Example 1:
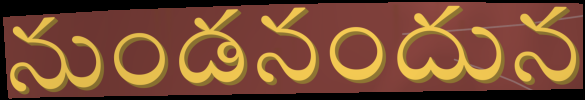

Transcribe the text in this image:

నుండనందున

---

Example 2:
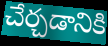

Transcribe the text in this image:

చేర్చడానికి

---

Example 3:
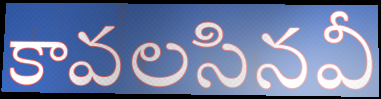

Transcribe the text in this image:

కావలసినవీ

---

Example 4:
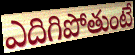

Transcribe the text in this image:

ఎదిగిపోతుంటే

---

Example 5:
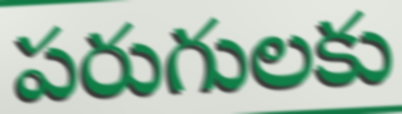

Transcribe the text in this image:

పరుగులకు